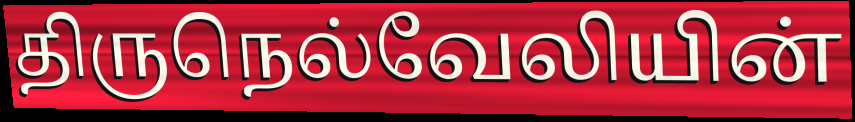
திருநெல்வேலியின்